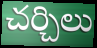
చర్చిలు